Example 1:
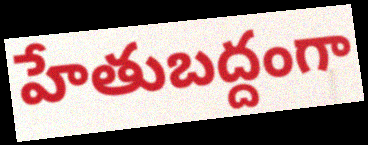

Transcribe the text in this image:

హేతుబద్దంగా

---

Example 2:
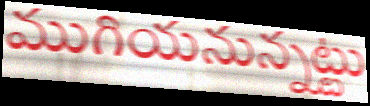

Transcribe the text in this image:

ముగియనున్నట్టు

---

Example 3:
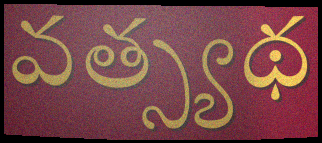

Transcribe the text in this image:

వత్స్యథ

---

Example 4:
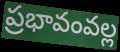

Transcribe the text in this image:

ప్రభావంవల్ల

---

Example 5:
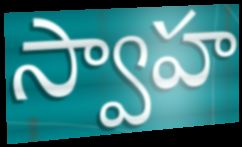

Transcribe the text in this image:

స్వాహ